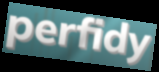
perfidy